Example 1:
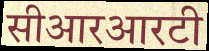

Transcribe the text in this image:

सीआरआरटी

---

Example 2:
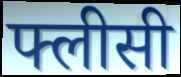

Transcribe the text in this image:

फ्लीसी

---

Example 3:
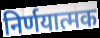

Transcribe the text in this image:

निर्णयात्मक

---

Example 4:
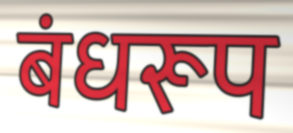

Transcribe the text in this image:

बंधरूप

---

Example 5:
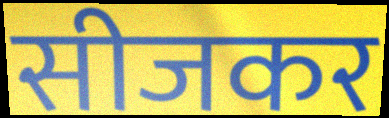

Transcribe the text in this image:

सीजकर